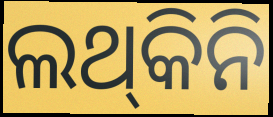
ଲଥ୍‌କିନି